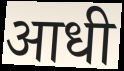
आधी